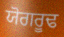
ਯੋਗਰੂਢ